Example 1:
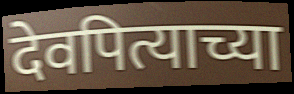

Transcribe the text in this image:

देवपित्याच्या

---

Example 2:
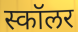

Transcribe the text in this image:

स्कॉलर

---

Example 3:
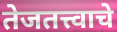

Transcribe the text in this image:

तेजतत्त्वाचे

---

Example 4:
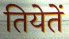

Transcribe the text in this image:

तियेतें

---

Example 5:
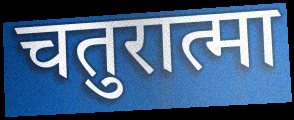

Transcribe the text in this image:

चतुरात्मा